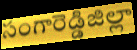
సంగారెడ్డిజిల్లా